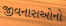
જીવનારાઓનો